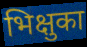
भिक्षुका